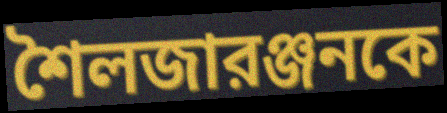
শৈলজারঞ্জনকে